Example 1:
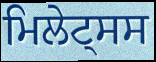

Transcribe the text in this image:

ਮਿਲੇਟ੍ਸਸ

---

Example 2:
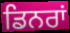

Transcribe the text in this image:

ਡਿਨਰਾਂ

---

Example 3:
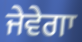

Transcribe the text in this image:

ਜੇਵੇਗਾ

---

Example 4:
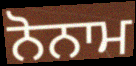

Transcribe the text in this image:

ਨੋਨਾਮ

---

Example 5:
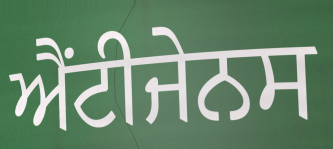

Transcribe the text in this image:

ਐਂਟੀਜੇਨਸ